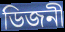
ডিজনী